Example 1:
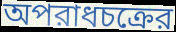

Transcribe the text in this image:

অপরাধচক্রের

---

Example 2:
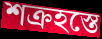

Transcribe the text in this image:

শক্রহস্তে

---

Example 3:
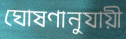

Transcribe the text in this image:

ঘোষণানুযায়ী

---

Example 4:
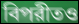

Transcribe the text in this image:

বিপরীতও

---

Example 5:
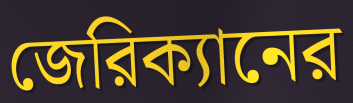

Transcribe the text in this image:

জেরিক্যানের